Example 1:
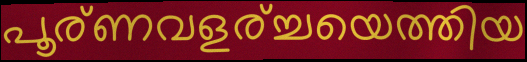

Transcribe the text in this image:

പൂര്ണവളര്ച്ചയെത്തിയ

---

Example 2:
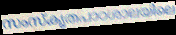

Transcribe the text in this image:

സംസ്കൃതപാഠശാലയിലെ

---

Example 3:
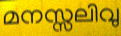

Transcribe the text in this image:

മനസ്സലിവു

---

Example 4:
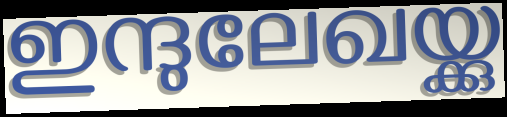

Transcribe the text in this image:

ഇന്ദുലേഖയ്ക്കു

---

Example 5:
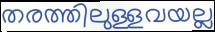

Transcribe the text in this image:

തരത്തിലുള്ളവയല്ല